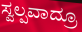
ಸ್ವಲ್ಪವಾದ್ರೂ